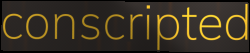
conscripted